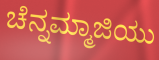
ಚೆನ್ನಮ್ಮಾಜಿಯು